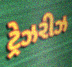
ટ્રેઝરીઝ